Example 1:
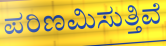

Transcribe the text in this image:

ಪರಿಣಮಿಸುತ್ತಿವೆ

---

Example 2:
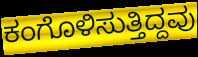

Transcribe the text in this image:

ಕಂಗೊಳಿಸುತ್ತಿದ್ದವು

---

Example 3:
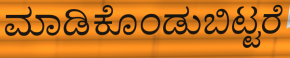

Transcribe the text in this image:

ಮಾಡಿಕೊಂಡುಬಿಟ್ಟರೆ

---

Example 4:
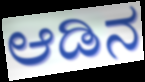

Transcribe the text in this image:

ಆಡಿನ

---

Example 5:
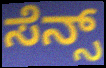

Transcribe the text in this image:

ಸೆನ್ಸ್